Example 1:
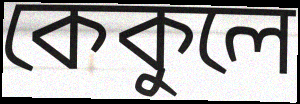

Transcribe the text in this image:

কেকুলে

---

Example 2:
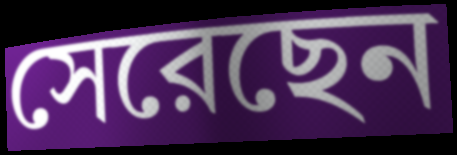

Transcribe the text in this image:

সেরেছেন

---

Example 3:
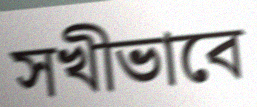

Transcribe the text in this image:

সখীভাবে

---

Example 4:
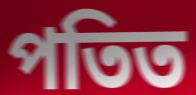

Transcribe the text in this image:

পতিত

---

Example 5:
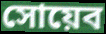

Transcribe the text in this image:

সোয়েব